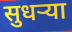
सुधर्‍या